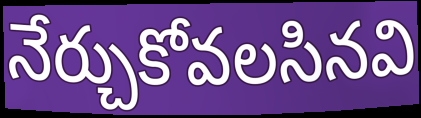
నేర్చుకోవలసినవి